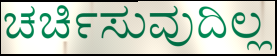
ಚರ್ಚಿಸುವುದಿಲ್ಲ